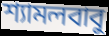
শ্যামলবাবু